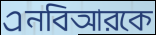
এনবিআরকে